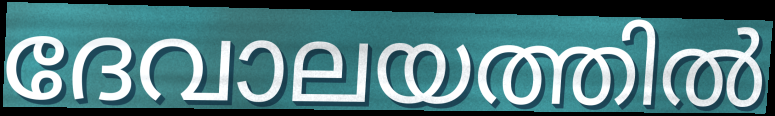
ദേവാലയത്തിൽ